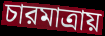
চারমাত্রায়